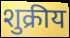
शुक्रीय